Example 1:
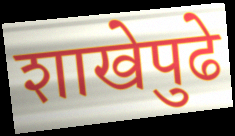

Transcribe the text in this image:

शाखेपुढे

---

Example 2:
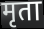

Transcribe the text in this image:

मृता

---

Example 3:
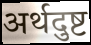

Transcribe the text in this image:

अर्थदुष्ट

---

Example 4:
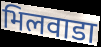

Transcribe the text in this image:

भिलवाडा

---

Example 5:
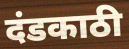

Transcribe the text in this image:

दंडकाठी